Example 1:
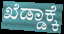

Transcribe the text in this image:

ಖೆಡ್ಡಾಕ್ಕೆ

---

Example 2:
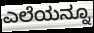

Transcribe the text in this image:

ಎಲೆಯನ್ನೂ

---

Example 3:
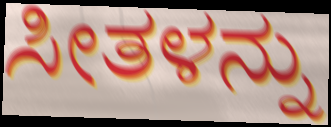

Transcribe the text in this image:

ಸೀತಳನ್ನು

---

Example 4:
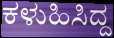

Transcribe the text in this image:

ಕಳುಹಿಸಿದ್ದ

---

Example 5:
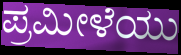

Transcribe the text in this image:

ಪ್ರಮೀಳೆಯು